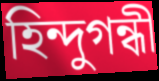
হিন্দুগন্ধী